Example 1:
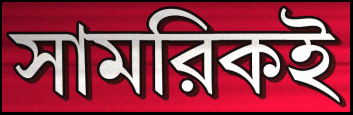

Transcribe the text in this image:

সামরিকই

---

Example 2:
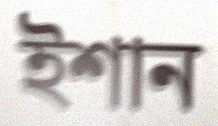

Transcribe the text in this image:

ইশান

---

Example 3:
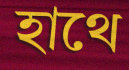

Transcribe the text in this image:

হাথে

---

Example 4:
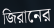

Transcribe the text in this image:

জিরানের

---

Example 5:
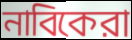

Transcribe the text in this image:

নাবিকেরা